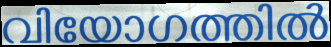
വിയോഗത്തിൽ